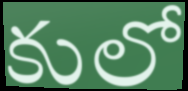
కులో